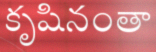
కృషినంతా